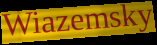
Wiazemsky